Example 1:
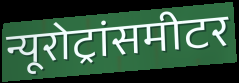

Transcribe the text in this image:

न्यूरोट्रांसमीटर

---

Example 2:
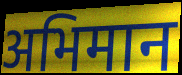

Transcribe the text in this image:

अभिमान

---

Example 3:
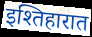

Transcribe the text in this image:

इश्तिहारात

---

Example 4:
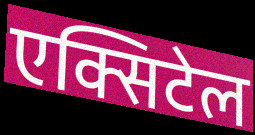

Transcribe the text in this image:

एक्सिटेल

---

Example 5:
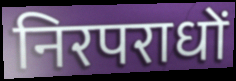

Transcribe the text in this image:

निरपराधों